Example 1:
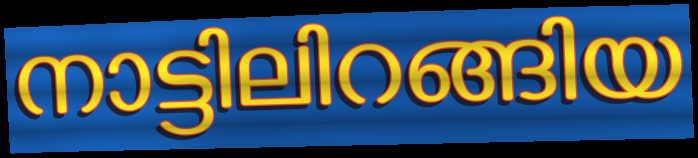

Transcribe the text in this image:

നാട്ടിലിറങ്ങിയ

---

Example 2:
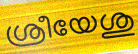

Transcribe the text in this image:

ശ്രീയേശു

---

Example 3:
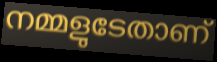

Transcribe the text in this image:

നമ്മളുടേതാണ്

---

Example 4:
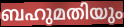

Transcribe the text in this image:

ബഹുമതിയും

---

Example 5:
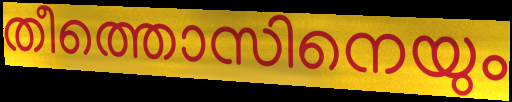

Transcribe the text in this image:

തീത്തൊസിനെയും